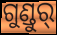
ଗୁଣ୍ଡୁର୍